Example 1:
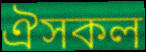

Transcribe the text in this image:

ঐসকল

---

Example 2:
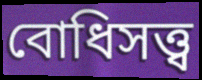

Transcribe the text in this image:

বোধিসত্ত্ব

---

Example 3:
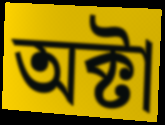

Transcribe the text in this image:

অক্টা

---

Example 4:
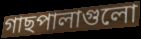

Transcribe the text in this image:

গাছপালাগুলো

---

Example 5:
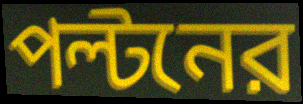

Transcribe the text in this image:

পল্টনের